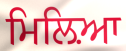
ਮਿਲ਼ਿਆ